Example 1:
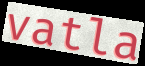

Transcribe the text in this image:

vatla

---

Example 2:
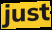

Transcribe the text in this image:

just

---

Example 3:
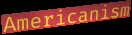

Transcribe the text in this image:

Americanism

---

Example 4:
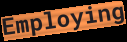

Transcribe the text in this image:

Employing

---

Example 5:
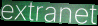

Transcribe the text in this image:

extranet